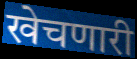
खेचणारी